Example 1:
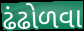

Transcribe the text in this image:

ઢંઢોળવા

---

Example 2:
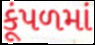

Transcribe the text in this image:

કૂંપળમાં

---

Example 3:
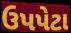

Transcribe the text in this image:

ઉપપેટા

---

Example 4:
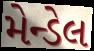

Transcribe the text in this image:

મેન્ડેલ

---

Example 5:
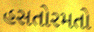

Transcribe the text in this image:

હસતોરમતો